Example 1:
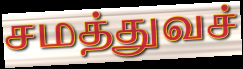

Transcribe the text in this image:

சமத்துவச்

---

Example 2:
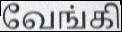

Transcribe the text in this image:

வேங்கி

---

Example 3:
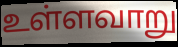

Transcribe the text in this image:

உள்ளவாறு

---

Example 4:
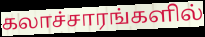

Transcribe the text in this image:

கலாச்சாரங்களில்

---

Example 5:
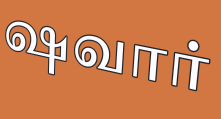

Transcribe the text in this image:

ஷவார்